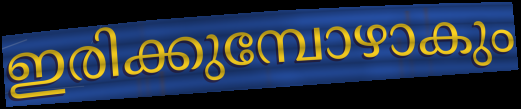
ഇരിക്കുമ്പോഴാകും